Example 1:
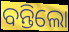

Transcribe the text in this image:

ବନ୍ତିଲୋ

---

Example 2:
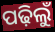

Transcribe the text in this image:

ପଢ଼ିଲୁଁ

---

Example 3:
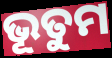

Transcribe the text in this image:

ଭୂତୁମ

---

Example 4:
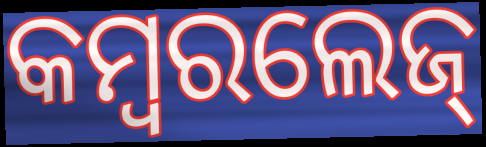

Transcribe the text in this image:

କମ୍ବରଲେଜ୍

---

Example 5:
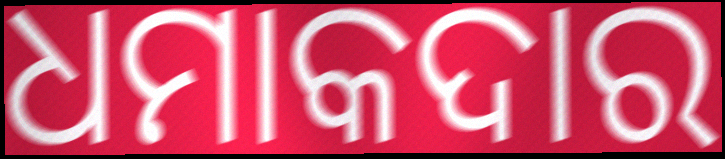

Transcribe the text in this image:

ଧମାକଦାର